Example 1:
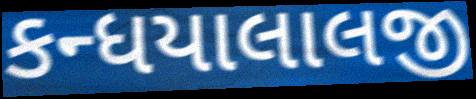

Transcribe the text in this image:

કન્ધયાલાલજી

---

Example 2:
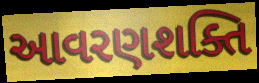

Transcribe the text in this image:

આવરણશક્તિ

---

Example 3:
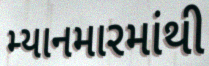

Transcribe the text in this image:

મ્યાનમારમાંથી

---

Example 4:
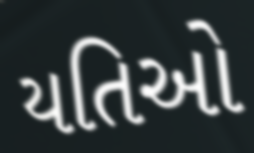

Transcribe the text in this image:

યતિઓ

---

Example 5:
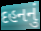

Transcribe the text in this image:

દહનનું